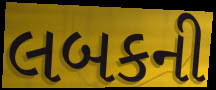
લબકની